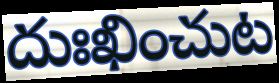
దుఃఖించుట